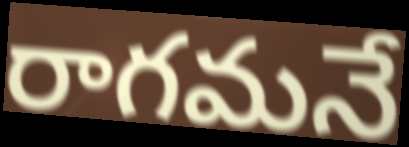
రాగమనే